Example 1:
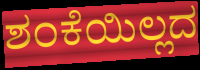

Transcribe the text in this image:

ಶಂಕೆಯಿಲ್ಲದ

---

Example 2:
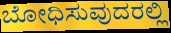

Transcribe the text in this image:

ಬೋಧಿಸುವುದರಲ್ಲಿ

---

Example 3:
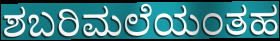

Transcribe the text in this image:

ಶಬರಿಮಲೆಯಂತಹ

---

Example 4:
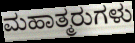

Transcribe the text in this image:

ಮಹಾತ್ಮರುಗಳು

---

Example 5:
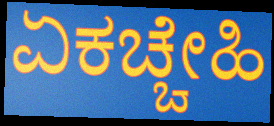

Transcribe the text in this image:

ಏಕಚ್ಚೇಹಿ